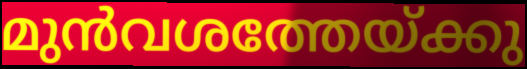
മുൻവശത്തേയ്ക്കു